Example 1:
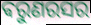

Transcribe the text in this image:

ଵରୁଣରସର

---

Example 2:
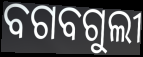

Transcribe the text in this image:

ବଗବଗୁଲୀ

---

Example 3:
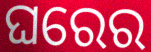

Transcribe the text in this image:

ଘରେର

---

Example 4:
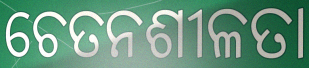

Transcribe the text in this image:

ଚେତନଶୀଳତା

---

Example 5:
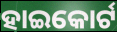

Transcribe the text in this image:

ହାଇକୋର୍ଟ